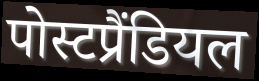
पोस्टप्रैंडियल